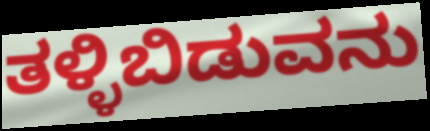
ತಳ್ಳಿಬಿಡುವನು